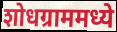
शोधग्राममध्ये